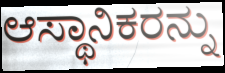
ಆಸ್ಥಾನಿಕರನ್ನು